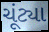
ચૂંટ્યા